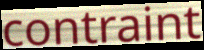
contraint